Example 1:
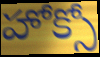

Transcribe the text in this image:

హోక్సో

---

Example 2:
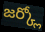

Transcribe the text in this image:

జర్క్లో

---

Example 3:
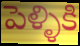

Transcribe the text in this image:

పెళ్ళికి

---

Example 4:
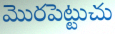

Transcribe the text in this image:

మొరపెట్టుచు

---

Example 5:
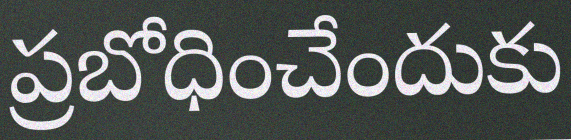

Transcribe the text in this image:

ప్రబోధించేందుకు